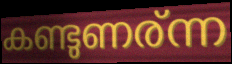
കണ്ടുണര്ന്ന